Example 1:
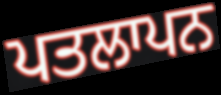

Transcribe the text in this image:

ਪਤਲਾਪਨ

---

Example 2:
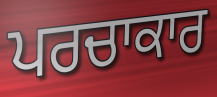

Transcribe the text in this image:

ਪਰਚਾਕਾਰ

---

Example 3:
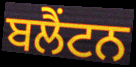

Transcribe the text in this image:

ਬਲੈਂਟਨ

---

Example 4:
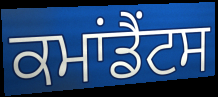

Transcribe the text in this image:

ਕਮਾਂਡੈਂਟਸ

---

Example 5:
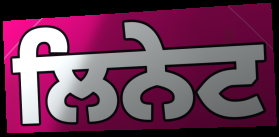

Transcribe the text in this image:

ਲਿਨੇਟ